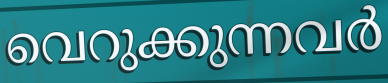
വെറുക്കുന്നവർ